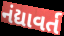
નંદ્યાવર્ત